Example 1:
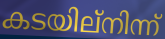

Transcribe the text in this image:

കടയില്നിന്ന്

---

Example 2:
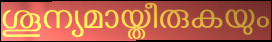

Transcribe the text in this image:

ശൂന്യമായ്തീരുകയും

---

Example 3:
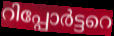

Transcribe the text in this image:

റിപ്പോർട്ടറെ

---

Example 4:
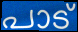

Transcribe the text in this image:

പാട്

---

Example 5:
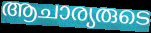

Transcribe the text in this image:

ആചാര്യരുടെ